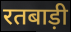
रतबाड़ी